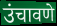
उंचावणे